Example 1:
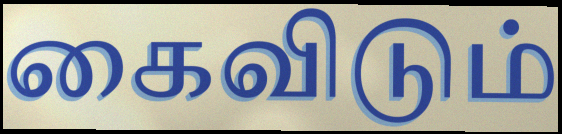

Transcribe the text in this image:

கைவிடும்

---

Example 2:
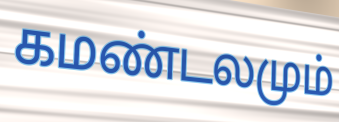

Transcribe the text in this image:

கமண்டலமும்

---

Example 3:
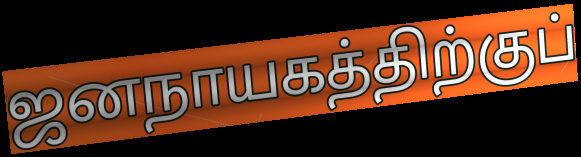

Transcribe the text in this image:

ஜனநாயகத்திற்குப்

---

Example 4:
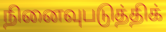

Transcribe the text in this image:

நினைவுபடுத்திக்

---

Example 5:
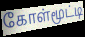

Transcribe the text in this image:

கோள்மூட்டி